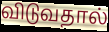
விடுவதால்